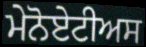
ਮੇਨੋਏਟੀਅਸ